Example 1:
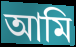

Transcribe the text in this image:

আমি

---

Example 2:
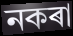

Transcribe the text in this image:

নকৰা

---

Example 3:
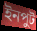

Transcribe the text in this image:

ইনপুট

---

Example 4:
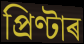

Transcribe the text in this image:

প্ৰিণ্টাৰ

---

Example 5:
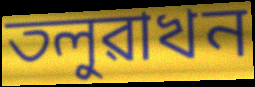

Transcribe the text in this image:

তলুৱাখন